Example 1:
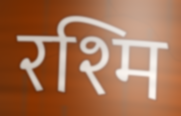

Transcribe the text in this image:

रश्मि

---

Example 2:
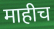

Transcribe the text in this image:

माहीच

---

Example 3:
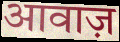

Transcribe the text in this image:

आवाज़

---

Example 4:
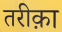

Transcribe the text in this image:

तरीक़ा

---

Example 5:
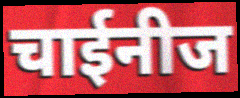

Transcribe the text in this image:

चाईनीज